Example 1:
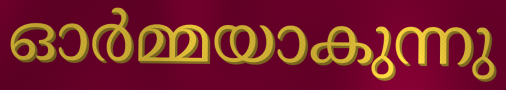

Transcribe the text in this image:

ഓർമ്മയാകുന്നു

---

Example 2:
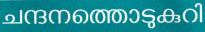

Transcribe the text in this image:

ചന്ദനത്തൊടുകുറി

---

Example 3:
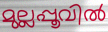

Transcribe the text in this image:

മുല്ലപ്പൂവിൽ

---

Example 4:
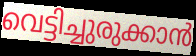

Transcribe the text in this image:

വെട്ടിച്ചുരുക്കാൻ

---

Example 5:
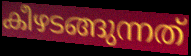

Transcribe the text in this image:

കീഴടങ്ങുന്നത്